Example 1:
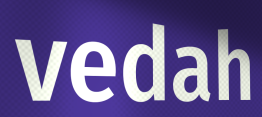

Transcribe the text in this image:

vedah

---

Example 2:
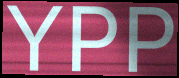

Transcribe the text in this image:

YPP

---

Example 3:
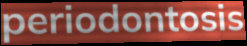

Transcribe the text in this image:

periodontosis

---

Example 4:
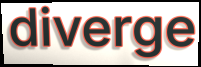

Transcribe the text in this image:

diverge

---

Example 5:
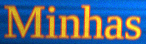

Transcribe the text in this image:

Minhas